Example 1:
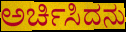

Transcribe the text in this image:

ಅರ್ಚಿಸಿದನು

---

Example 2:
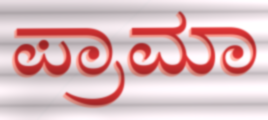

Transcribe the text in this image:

ಪ್ರಾಮಾ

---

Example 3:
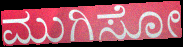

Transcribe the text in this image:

ಮುಗಿಸೋ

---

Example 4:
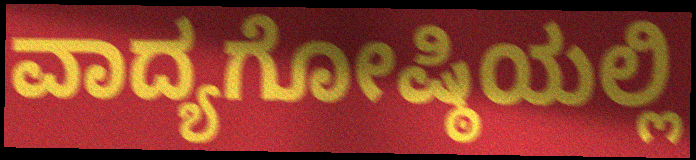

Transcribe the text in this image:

ವಾದ್ಯಗೋಷ್ಠಿಯಲ್ಲಿ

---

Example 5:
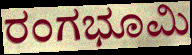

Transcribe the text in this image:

ರಂಗಭೂಮಿ